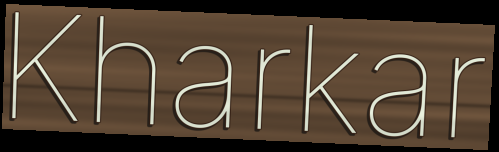
Kharkar